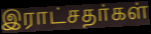
இராட்சதர்கள்